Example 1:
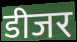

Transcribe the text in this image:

डीजर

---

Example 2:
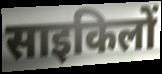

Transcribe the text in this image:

साइकिलों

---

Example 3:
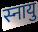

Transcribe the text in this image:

स्नायु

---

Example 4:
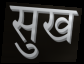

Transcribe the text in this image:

सुख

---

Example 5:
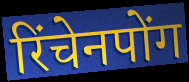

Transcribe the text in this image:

रिंचेनपोंग